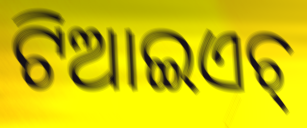
ଟିଆଇଏଚ୍